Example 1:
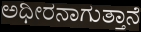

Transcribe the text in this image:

ಅಧೀರನಾಗುತ್ತಾನೆ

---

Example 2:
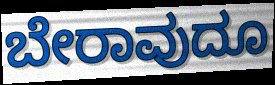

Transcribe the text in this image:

ಬೇರಾವುದೂ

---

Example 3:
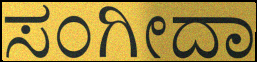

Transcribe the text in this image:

ಸಂಗೀದಾ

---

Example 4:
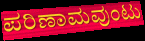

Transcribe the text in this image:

ಪರಿಣಾಮವುಂಟು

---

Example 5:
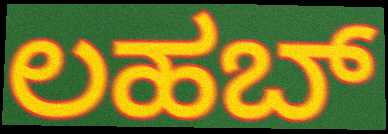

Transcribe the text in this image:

ಲಹಬ್